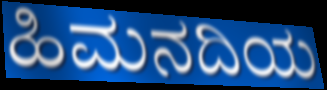
ಹಿಮನದಿಯ